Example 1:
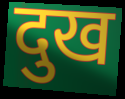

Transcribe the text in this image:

दुख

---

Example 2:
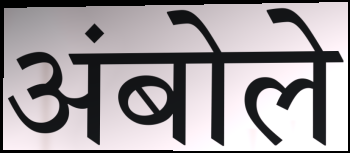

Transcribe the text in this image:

अंबोले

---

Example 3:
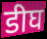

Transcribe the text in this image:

डीघ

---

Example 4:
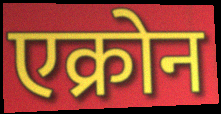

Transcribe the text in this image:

एक्रोन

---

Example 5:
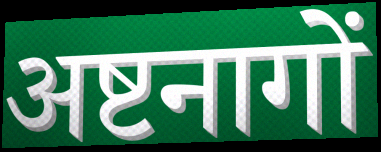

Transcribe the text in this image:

अष्टनागों